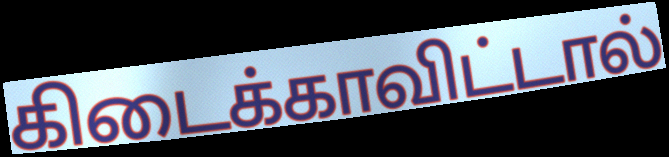
கிடைக்காவிட்டால்